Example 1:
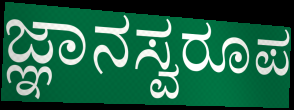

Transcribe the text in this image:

ಜ್ಞಾನಸ್ವರೂಪ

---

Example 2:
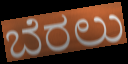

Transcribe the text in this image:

ಬೆರಲು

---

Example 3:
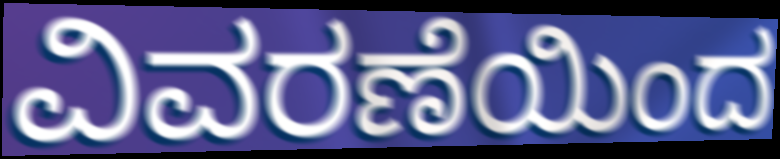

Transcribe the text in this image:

ವಿವರಣೆಯಿಂದ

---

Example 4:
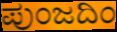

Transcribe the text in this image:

ಪುಂಜದಿಂ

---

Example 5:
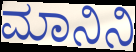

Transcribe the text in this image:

ಮಾನಿನಿ